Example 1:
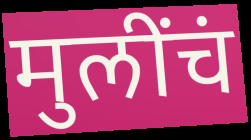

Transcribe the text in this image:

मुलींचं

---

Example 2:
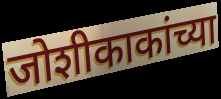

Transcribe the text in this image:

जोशीकाकांच्या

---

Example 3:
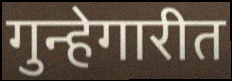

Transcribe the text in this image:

गुन्हेगारीत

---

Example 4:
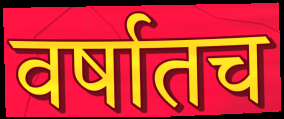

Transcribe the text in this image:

वर्षातच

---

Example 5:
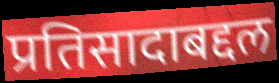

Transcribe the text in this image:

प्रतिसादाबद्दल